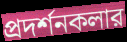
প্রদর্শনকলার